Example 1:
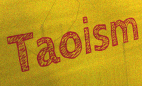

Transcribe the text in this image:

Taoism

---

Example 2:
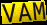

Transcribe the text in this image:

VAM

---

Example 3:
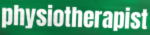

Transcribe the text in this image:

physiotherapist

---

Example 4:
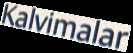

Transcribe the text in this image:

Kalvimalar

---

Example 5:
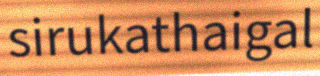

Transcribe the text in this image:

sirukathaigal